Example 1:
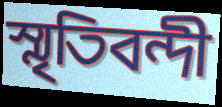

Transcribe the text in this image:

স্মৃতিবন্দী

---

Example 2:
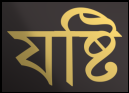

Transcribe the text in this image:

যষ্টি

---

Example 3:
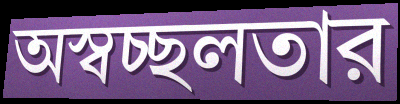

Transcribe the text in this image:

অস্বচ্ছলতার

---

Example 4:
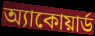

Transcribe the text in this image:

অ্যাকোয়ার্ড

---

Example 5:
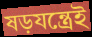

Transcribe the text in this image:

ষড়যন্ত্রেই